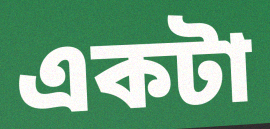
একটা